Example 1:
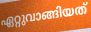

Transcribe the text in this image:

ഏറ്റുവാങ്ങിയത്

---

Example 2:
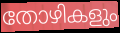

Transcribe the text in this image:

തോഴികളും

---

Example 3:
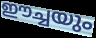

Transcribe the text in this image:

ഈച്ചയും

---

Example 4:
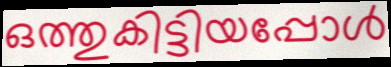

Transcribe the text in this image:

ഒത്തുകിട്ടിയപ്പോൾ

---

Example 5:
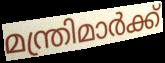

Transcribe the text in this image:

മന്ത്രിമാർക്ക്